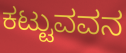
ಕಟ್ಟುವವನ